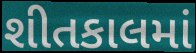
શીતકાલમાં